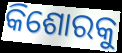
କିଶୋରକୁ